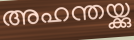
അഹന്തയ്ക്കു